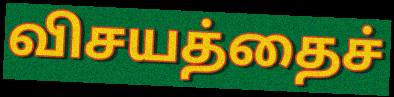
விசயத்தைச்